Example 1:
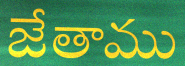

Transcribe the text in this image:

జేతాము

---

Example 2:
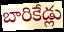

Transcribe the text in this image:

బారికేడ్లు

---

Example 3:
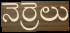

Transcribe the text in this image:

నెర్రెలు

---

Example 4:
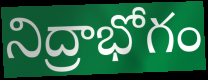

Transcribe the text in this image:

నిద్రాభోగం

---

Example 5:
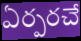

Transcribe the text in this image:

ఏర్పరచే